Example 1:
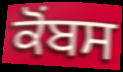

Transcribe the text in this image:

ਕੋਂਬਸ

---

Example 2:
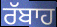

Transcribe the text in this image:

ਰੱਬਾਹ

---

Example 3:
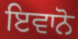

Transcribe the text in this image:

ਇਵਾਨੋ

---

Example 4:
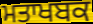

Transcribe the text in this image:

ਮਤਾਖਬਕ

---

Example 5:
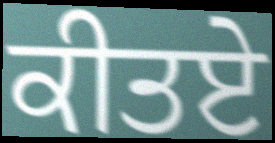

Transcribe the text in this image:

ਕੀਤਏ